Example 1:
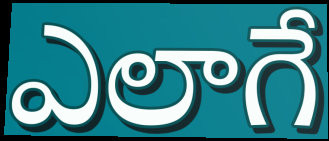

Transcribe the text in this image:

ఎలాగే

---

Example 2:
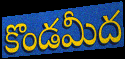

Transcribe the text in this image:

కొండమీద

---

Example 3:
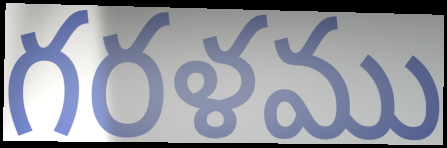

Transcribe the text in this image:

గరళము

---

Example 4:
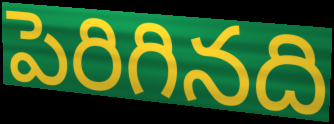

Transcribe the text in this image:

పెరిగినది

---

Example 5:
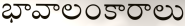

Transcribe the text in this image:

భావాలంకారాలు